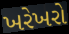
ખરેખરો